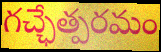
గచ్ఛేత్పరమం